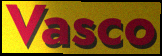
Vasco